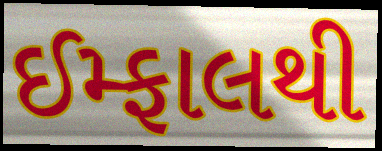
ઈમ્ફાલથી